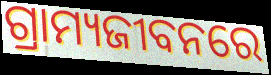
ଗ୍ରାମ୍ୟଜୀବନରେ